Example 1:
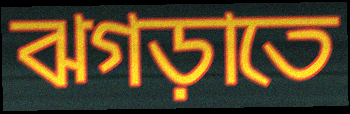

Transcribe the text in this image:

ঝগড়াতে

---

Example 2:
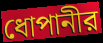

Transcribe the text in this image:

ধোপানীর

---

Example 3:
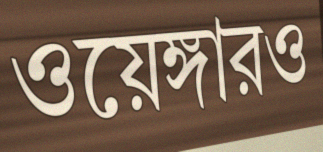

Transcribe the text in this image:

ওয়েঙ্গারও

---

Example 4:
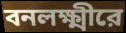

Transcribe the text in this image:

বনলক্ষ্মীরে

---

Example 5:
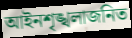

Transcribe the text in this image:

আইনশৃঙ্খলাজনিত